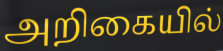
அறிகையில்